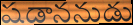
షడాననుడు